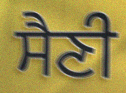
ਸੈਣੀ